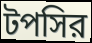
টপসির